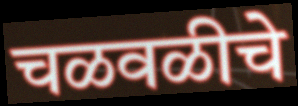
चळवळीचे